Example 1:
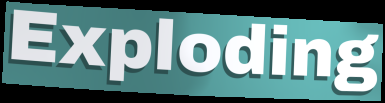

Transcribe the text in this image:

Exploding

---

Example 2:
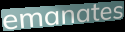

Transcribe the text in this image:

emanates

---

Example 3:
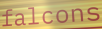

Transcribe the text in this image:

falcons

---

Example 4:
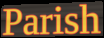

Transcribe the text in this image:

Parish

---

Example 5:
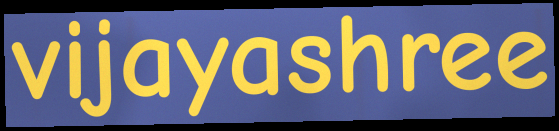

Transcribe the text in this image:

vijayashree